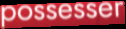
possesser